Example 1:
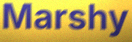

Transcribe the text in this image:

Marshy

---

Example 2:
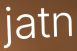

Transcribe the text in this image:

jatn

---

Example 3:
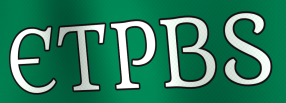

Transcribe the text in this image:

ETPBS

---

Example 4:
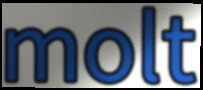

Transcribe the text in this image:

molt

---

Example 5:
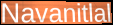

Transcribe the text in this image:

Navanitlal